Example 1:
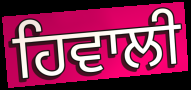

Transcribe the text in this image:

ਹਿਵਾਲੀ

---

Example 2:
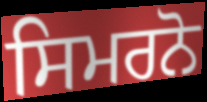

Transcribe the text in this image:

ਸਿਮਰਨੋ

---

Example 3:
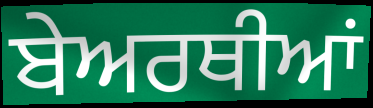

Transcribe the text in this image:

ਬੇਅਰਥੀਆਂ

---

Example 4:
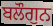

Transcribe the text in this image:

ਬਲੌਗੁਨ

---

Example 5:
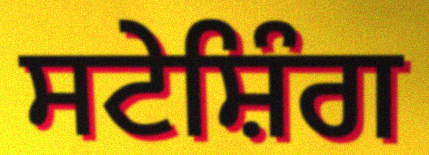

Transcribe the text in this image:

ਸਟੇਸ਼ਿੰਗ